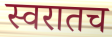
स्वरातच